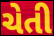
ચેતી